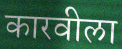
कारवीला